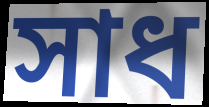
সাধ